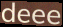
deee